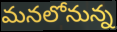
మనలోనున్న